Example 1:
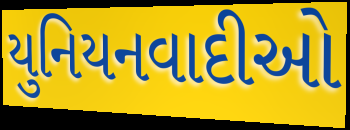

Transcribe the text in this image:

યુનિયનવાદીઓ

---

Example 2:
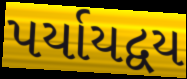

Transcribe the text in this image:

પર્યાયદ્વય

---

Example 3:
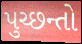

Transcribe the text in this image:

પુચ્છન્તો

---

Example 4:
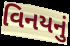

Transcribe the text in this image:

વિનયનું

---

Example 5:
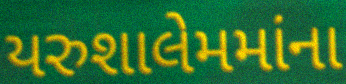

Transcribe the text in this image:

યરુશાલેમમાંના